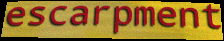
escarpment